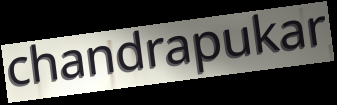
chandrapukar